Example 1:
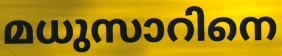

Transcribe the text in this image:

മധുസാറിനെ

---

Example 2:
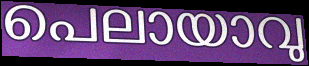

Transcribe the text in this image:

പെലായാവു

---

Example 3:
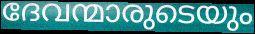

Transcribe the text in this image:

ദേവന്മാരുടെയും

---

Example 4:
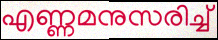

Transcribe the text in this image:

എണ്ണമനുസരിച്ച്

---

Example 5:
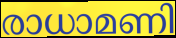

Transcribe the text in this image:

രാധാമണി